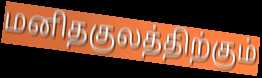
மனிதகுலத்திற்கும்